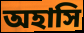
অহাসি